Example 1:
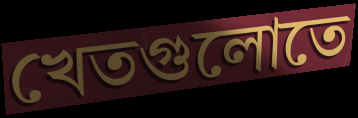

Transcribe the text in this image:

খেতগুলোতে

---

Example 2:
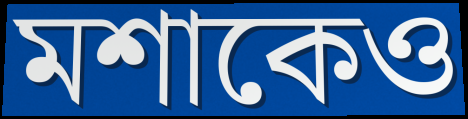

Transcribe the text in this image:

মশাকেও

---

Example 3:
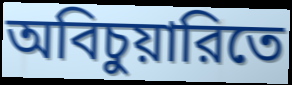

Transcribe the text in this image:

অবিচুয়ারিতে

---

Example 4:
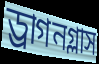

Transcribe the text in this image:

ড্রাগনগ্লাস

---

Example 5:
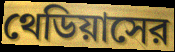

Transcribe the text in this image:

থেডিয়াসের